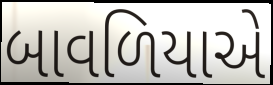
બાવળિયાએ